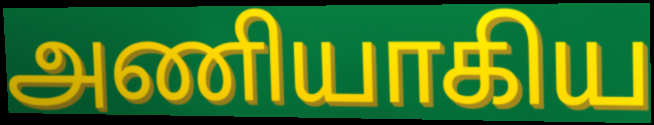
அணியாகிய